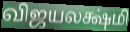
விஜயலக்ஷ்மி